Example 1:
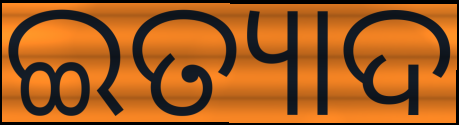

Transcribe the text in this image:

ଇତ୍ୟାଦ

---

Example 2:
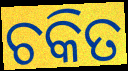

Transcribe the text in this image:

ଚକିତ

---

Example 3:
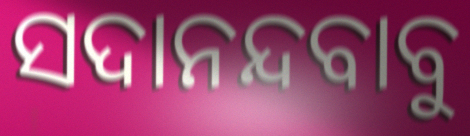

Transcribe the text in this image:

ସଦାନନ୍ଦବାବୁ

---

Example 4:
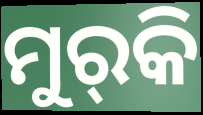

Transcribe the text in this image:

ମୁର୍‌କି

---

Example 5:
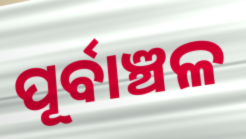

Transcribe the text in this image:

ପୂର୍ବାଞ୍ଚଳ